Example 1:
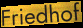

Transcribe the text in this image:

Friedhof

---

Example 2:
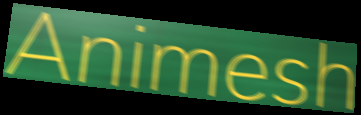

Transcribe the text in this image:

Animesh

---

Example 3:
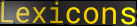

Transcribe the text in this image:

Lexicons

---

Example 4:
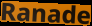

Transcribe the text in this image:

Ranade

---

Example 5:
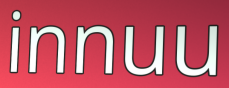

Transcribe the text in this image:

innuu